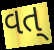
વત્